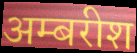
अम्बरीश